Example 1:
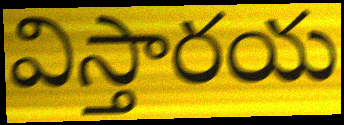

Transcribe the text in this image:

విస్తారయ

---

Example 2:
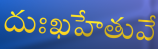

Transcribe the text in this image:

దుఃఖహేతువే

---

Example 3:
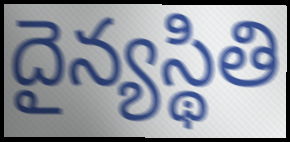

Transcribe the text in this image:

దైన్యస్థితి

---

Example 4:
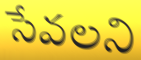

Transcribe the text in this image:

సేవలని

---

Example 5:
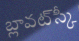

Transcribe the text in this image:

బ్లావట్‌స్కీ